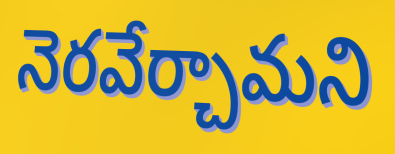
నెరవేర్చామని